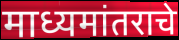
माध्यमांतराचे